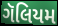
ગૅલિયમ